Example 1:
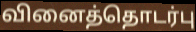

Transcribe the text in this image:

வினைத்தொடர்பு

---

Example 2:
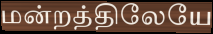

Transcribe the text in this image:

மன்றத்திலேயே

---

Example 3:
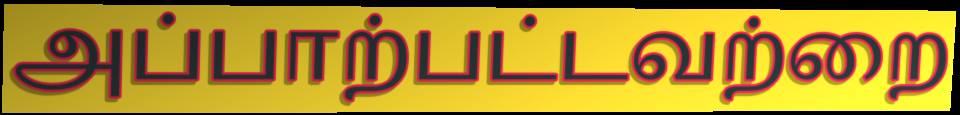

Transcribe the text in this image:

அப்பாற்பட்டவற்றை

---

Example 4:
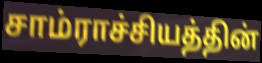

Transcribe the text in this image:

சாம்ராச்சியத்தின்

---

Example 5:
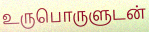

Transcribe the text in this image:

உருபொருளுடன்